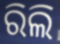
ରିଲି